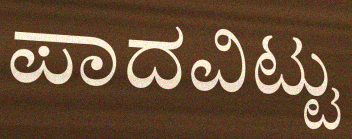
ಪಾದವಿಟ್ಟು